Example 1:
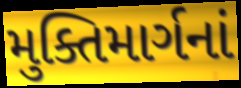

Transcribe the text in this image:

મુક્તિમાર્ગનાં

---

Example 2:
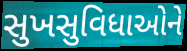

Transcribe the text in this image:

સુખસુવિધાઓને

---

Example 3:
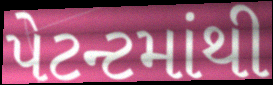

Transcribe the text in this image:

પેટન્ટમાંથી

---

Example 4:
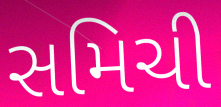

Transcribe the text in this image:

સમિચી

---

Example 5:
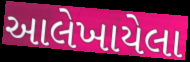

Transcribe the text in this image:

આલેખાયેલા